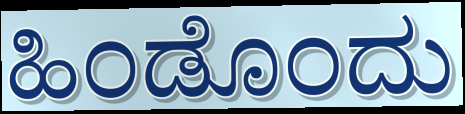
ಹಿಂಡೊಂದು